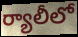
ర్యాలీలో